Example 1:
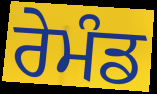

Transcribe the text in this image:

ਰੇਮੰਡ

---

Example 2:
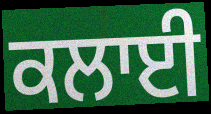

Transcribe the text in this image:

ਕਲਾਈ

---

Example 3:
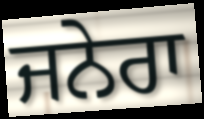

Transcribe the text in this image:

ਜਨੇਰਾ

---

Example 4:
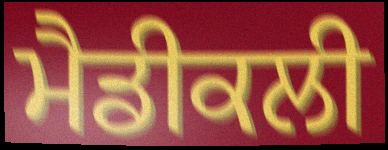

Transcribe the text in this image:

ਮੈਡੀਕਲੀ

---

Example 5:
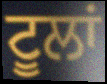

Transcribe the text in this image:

ਟੂਲਾਂ